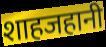
शाहजहानी